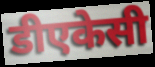
डीएकेसी